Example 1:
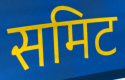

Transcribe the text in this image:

समिट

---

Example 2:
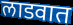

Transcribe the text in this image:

लाडवात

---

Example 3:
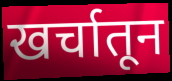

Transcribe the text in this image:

खर्चातून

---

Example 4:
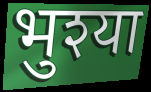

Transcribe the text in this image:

भुश्या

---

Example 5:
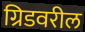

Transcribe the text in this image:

ग्रिडवरील